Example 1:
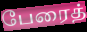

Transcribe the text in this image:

பேரைத்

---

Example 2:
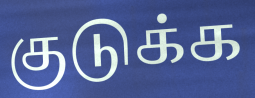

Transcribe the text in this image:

குடுக்க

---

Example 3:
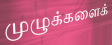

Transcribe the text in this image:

முழுக்களைக்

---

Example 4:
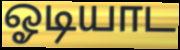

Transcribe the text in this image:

ஓடியாட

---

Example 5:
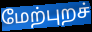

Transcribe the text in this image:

மேற்புறச்